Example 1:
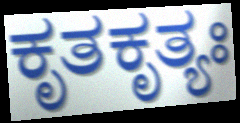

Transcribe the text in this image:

ಕೃತಕೃತ್ಯಃ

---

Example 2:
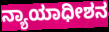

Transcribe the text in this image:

ನ್ಯಾಯಾಧೀಶನ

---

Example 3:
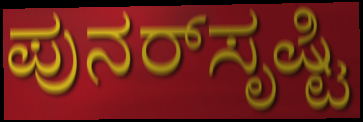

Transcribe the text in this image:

ಪುನರ್‌ಸೃಷ್ಟಿ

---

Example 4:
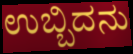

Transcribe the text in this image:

ಉಬ್ಬಿದನು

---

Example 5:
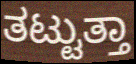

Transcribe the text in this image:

ತಟ್ಟುತ್ತಾ